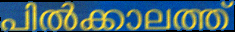
പിൽക്കാലത്ത്